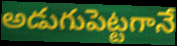
అడుగుపెట్టగానే